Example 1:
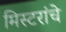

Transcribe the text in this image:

मिस्टरांचे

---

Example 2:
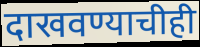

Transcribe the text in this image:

दाखवण्याचीही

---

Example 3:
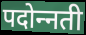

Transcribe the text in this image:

पदोन्‍नती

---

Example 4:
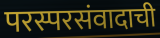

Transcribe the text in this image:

परस्परसंवादाची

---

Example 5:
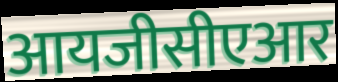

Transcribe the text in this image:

आयजीसीएआर